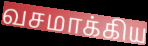
வசமாக்கிய